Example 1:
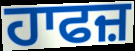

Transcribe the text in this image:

ਹਾਫਜ਼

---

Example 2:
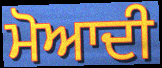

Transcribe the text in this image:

ਮੋਆਦੀ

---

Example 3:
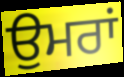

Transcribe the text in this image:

ਉਮਰਾਂ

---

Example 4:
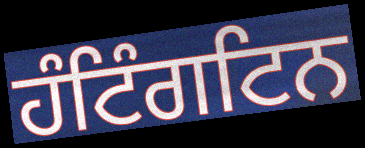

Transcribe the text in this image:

ਹੰਟਿੰਗਟਿਨ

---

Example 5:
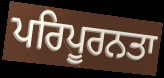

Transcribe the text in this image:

ਪਰਿਪੂਰਨਤਾ